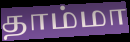
தாம்மா